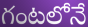
గంటలోనే